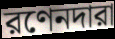
রণেনদারা